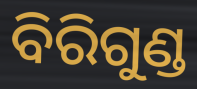
ବିରିଗୁଣ୍ଡ